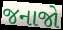
જનાજો